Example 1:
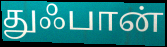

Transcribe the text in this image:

துஃபான்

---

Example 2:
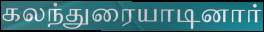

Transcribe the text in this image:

கலந்துரையாடினார்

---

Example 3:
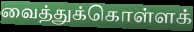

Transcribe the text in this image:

வைத்துக்கொள்ளக்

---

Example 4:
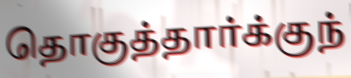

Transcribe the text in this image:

தொகுத்தார்க்குந்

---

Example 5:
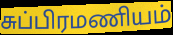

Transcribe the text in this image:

சுப்பிரமணியம்